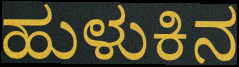
ಹುಳುಕಿನ